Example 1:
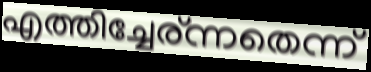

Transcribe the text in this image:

എത്തിച്ചേര്ന്നതെന്ന്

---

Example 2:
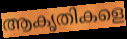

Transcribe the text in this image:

ആകൃതികളെ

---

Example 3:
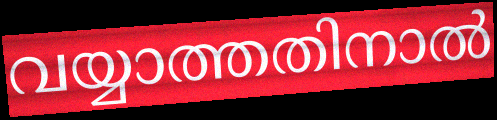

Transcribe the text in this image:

വയ്യാത്തതിനാൽ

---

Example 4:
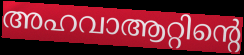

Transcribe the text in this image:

അഹവാആറ്റിന്റെ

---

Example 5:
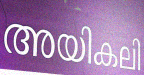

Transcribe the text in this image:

അയികലി